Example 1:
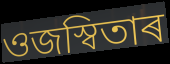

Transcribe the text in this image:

ওজস্বিতাৰ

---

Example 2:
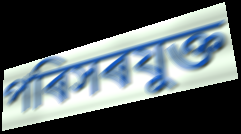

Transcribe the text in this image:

পৰিসৰযুক্ত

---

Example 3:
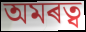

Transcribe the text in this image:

অমৰত্ব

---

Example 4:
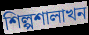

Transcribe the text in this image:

শিল্পশালাখন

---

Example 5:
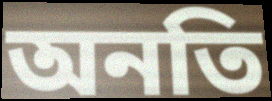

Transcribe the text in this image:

অনতি